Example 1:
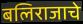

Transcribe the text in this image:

बलिराजाचे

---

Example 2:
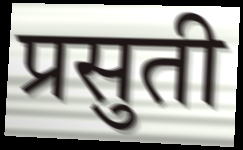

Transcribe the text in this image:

प्रसुती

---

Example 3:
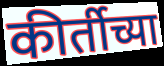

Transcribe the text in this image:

कीर्तीच्या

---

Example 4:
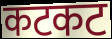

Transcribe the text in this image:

कटकट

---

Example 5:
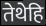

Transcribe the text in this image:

तेथेहि